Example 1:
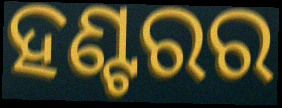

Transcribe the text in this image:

ହଣ୍ଟରର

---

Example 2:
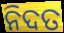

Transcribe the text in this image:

ନିଦତ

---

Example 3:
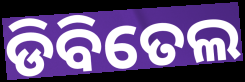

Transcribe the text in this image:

ଡିବିତେଲ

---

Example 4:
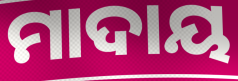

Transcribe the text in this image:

ମାଦାୟ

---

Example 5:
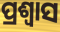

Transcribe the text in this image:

ପ୍ରଶ୍ୱାସ